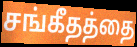
சங்கீதத்தை